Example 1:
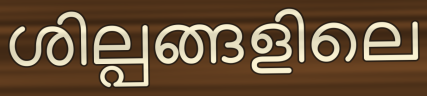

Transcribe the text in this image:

ശില്പങ്ങളിലെ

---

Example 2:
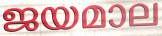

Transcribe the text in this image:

ജയമാല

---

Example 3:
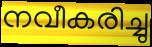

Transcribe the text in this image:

നവീകരിച്ചു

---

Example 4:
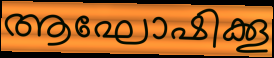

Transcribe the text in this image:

ആഘോഷിക്കൂ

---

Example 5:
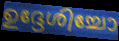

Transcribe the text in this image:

ഉദ്ദേശിച്ചോ